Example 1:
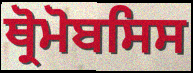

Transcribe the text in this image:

ਥ੍ਰੋਮੋਬਸਿਸ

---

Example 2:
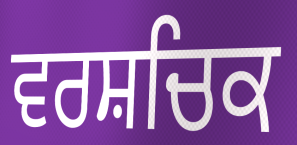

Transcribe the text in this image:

ਵਰਸ਼ਚਿਕ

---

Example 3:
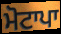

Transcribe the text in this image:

ਮੋਟਾਪਾ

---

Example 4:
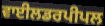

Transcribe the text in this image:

ਵਾਈਲਡਰਪੀਪਲ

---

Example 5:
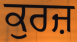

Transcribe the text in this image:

ਕੁਰਜ਼